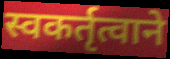
स्वकर्तृत्वाने